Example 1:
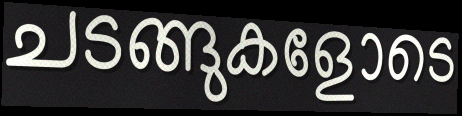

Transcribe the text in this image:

ചടങ്ങുകളോടെ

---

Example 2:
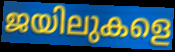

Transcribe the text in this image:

ജയിലുകളെ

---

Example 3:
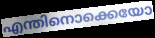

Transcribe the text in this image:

എന്തിനൊക്കെയോ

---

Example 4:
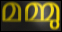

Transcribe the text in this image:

മമ്മു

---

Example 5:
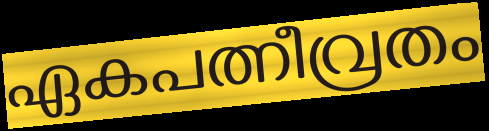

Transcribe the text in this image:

ഏകപത്നീവ്രതം